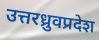
उत्तरध्रुवप्रदेश